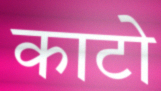
काटो